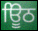
ਊਿਠ